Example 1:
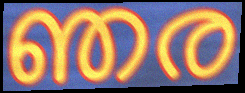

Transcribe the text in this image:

ഞര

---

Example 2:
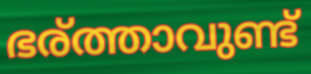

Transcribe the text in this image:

ഭര്ത്താവുണ്ട്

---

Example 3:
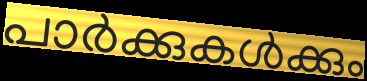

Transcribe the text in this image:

പാർക്കുകൾക്കും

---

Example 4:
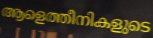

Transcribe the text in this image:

ആളെത്തീനികളുടെ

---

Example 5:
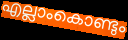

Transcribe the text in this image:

എല്ലാംകൊണ്ടും